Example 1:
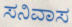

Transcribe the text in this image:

ಸನಿವಾಸ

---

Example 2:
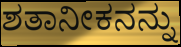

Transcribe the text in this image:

ಶತಾನೀಕನನ್ನು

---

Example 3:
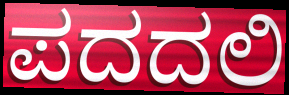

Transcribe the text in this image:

ಪದದಲಿ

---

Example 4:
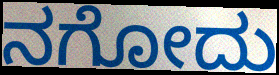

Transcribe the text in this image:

ನಗೋದು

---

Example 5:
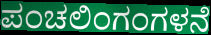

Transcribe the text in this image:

ಪಂಚಲಿಂಗಂಗಳನೆ